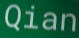
Qian